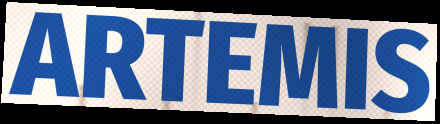
ARTEMIS